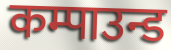
कम्पाउन्ड